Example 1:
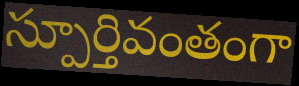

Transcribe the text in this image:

స్పూర్తివంతంగా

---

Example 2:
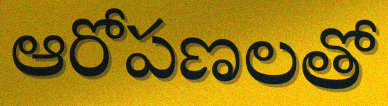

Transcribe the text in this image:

ఆరోపణలతో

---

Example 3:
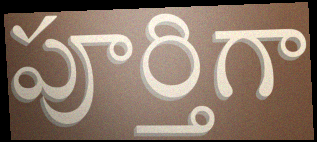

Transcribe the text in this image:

పూర్తిగా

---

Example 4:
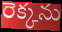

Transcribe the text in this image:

రెక్కను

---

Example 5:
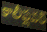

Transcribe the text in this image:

కాలీఫ్లవర్